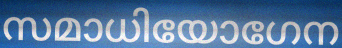
സമാധിയോഗേന